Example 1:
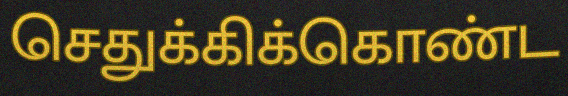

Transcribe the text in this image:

செதுக்கிக்கொண்ட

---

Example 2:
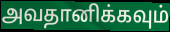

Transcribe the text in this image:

அவதானிக்கவும்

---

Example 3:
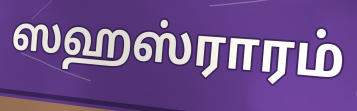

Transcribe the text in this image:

ஸஹஸ்ராரம்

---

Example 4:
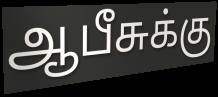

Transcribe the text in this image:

ஆபீசுக்கு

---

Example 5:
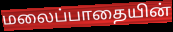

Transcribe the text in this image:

மலைப்பாதையின்